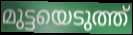
മുട്ടയെടുത്ത്